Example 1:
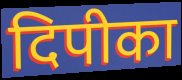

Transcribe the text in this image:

दिपीका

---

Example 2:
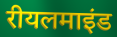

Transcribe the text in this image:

रीयलमाइंड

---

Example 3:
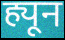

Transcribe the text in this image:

ह्यून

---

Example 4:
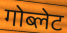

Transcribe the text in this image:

गोब्लेट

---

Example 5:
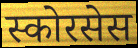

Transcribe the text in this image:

स्कोरसेस